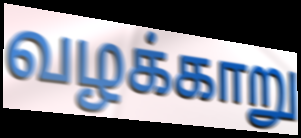
வழக்காறு